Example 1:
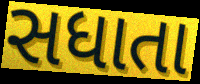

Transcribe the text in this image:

સધાતા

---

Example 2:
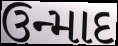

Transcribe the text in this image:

ઉન્માદ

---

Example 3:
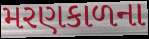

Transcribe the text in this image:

મરણકાળના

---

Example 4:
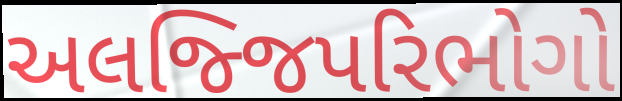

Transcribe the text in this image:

અલજ્જિપરિભોગો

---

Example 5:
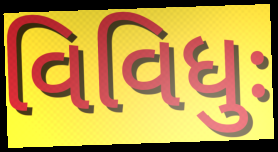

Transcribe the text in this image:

વિવિધુઃ